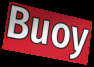
Buoy